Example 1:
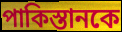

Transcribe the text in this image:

পাকিস্তানকে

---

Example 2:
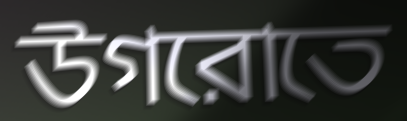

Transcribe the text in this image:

উগরোতে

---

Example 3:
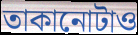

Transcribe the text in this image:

তাকানোটাও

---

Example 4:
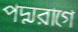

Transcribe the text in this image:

পদ্মরাগে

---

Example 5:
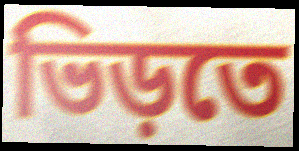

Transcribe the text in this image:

ভিড়তে